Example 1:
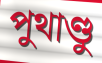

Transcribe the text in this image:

পুথাণ্ডু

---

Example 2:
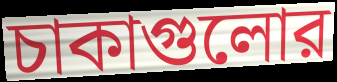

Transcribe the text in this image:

চাকাগুলোর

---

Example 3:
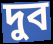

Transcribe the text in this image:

দুব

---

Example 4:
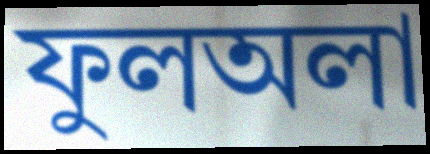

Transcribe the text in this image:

ফুলঅলা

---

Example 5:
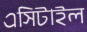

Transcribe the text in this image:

এসিটাইল